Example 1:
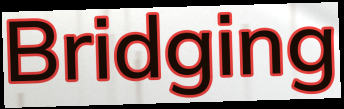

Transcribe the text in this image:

Bridging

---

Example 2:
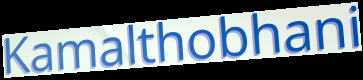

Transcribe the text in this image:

Kamalthobhani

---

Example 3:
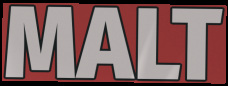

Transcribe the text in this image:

MALT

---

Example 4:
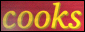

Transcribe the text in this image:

cooks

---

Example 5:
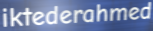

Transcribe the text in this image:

iktederahmed